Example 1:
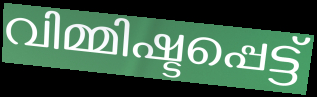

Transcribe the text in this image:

വിമ്മിഷ്ടപ്പെട്ട്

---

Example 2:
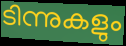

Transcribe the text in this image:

ടിന്നുകളും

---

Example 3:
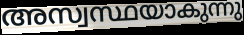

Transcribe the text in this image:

അസ്വസ്ഥയാകുന്നു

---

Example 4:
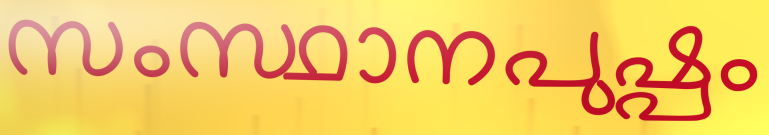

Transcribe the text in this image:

സംസ്ഥാനപുഷ്പം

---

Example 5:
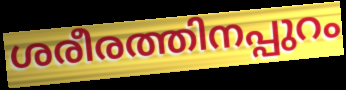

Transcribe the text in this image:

ശരീരത്തിനപ്പുറം